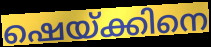
ഷെയ്ക്കിനെ